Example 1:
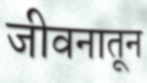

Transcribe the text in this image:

जीवनातून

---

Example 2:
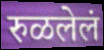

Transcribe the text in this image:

रुळलेलं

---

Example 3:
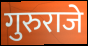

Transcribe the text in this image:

गुरुराजे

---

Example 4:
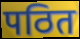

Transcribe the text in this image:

पठित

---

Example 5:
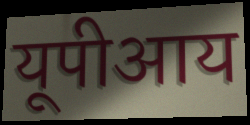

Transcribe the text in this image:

यूपीआय